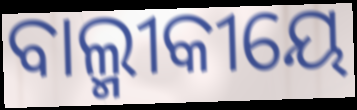
ବାଲ୍ମୀକୀୟେ